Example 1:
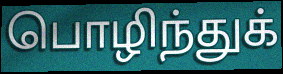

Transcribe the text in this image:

பொழிந்துக்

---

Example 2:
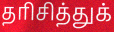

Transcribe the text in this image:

தரிசித்துக்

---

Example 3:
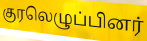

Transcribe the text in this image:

குரலெழுப்பினர்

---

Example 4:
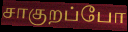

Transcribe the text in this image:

சாகுறப்போ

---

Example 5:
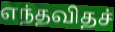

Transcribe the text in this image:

எந்தவிதச்